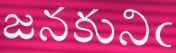
జనకునిఁ